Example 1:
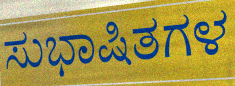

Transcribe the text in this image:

ಸುಭಾಷಿತಗಳ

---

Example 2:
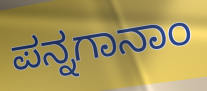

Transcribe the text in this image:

ಪನ್ನಗಾನಾಂ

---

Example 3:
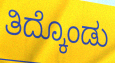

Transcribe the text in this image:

ತಿದ್ಕೊಂಡು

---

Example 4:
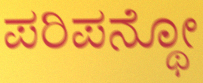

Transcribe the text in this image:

ಪರಿಪನ್ಥೋ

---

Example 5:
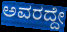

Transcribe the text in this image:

ಅವರದ್ದೇ